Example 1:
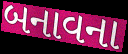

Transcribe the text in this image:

બનાવના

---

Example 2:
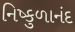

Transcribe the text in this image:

નિષ્કુળાનંદ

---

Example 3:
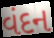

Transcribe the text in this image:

વંદન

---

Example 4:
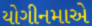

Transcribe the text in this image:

યોગીનમાએ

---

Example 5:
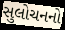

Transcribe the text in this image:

સુલોચનનો